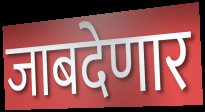
जाबदेणार